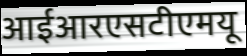
आईआरएसटीएमयू